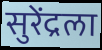
सुरेंद्रला